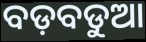
ବଡ଼ବଡୁଆ